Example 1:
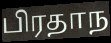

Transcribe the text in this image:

பிரதாந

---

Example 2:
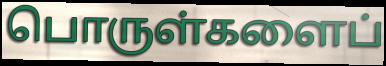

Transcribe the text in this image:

பொருள்களைப்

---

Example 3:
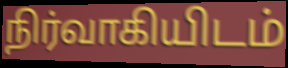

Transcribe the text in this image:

நிர்வாகியிடம்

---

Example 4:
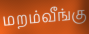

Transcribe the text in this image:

மறம்வீங்கு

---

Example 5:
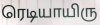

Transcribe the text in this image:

ரெடியாயிரு